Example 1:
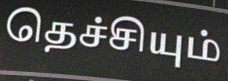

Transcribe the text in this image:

தெச்சியும்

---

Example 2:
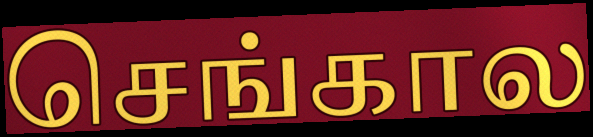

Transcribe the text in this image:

செங்கால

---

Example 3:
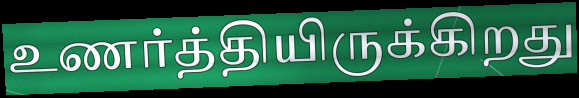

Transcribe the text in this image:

உணர்த்தியிருக்கிறது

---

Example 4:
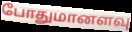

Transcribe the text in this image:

போதுமானளவு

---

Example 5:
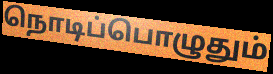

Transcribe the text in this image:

நொடிப்பொழுதும்